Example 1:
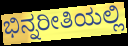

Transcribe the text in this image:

ಭಿನ್ನರೀತಿಯಲ್ಲಿ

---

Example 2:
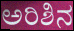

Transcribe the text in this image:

ಅರಿಶಿನ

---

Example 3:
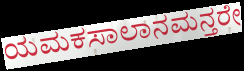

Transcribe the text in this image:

ಯಮಕಸಾಲಾನಮನ್ತರೇ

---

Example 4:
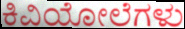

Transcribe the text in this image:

ಕಿವಿಯೋಲೆಗಳು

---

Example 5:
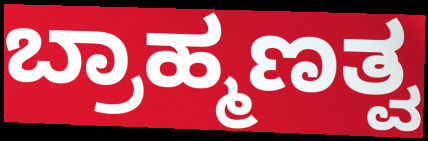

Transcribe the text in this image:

ಬ್ರಾಹ್ಮಣತ್ವ